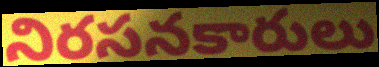
నిరసనకారులు